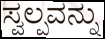
ಸ್ವಲ್ಪವನ್ನು